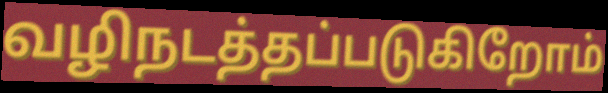
வழிநடத்தப்படுகிறோம்